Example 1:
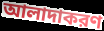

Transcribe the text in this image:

আলাদাকরণ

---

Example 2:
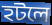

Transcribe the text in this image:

হটলে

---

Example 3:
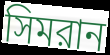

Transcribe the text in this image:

সিমরান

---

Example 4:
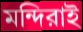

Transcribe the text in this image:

মন্দিরাই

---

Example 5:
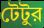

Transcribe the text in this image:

টেটুর